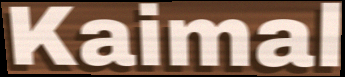
Kaimal